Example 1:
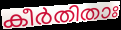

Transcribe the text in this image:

കീർതിതാഃ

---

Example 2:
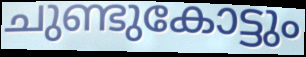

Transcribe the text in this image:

ചുണ്ടുകോട്ടും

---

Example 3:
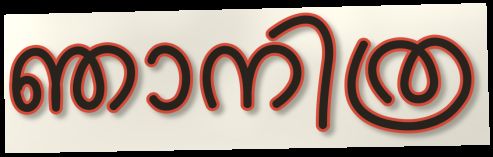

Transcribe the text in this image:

ഞാനിത്ര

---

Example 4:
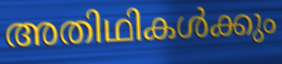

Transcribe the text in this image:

അതിഥികൾക്കും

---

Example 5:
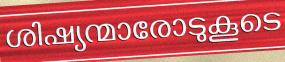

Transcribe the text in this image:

ശിഷ്യന്മാരോടുകൂടെ